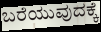
ಬರೆಯುವುದಕ್ಕೆ